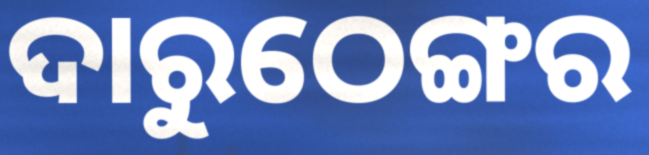
ଦାରୁଠେଙ୍ଗର